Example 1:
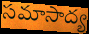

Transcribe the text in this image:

సమాసాద్య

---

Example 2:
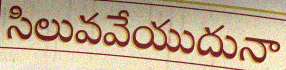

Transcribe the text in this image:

సిలువవేయుదునా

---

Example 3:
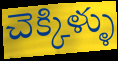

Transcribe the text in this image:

చెక్కిళ్ళు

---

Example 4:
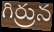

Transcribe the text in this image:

గిర్రున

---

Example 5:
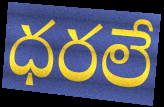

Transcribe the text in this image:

ధరలే